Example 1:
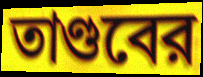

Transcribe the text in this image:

তাণ্ডবের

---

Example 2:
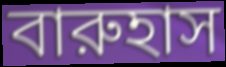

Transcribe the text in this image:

বারুহাস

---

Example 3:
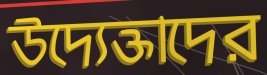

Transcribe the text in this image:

উদ্যেক্তাদের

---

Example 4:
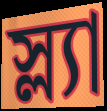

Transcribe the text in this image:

স্ল্যা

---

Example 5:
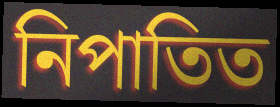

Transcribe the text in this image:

নিপাতিত